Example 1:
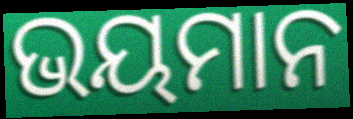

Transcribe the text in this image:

ଭୟମାନ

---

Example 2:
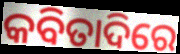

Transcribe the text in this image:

କବିତାଦିରେ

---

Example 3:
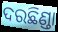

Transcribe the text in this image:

ଦରଛିଣ୍ଡା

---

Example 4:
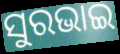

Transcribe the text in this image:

ସୁରଭାଇ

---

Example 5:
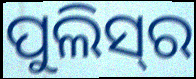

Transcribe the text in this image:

ପୁଲିସ୍‍ର